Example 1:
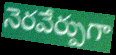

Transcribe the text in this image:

నెరవేర్పుగా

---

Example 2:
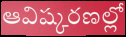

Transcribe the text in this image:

ఆవిష్కరణల్లో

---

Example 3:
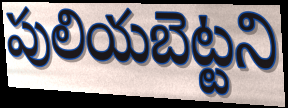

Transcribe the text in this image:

పులియబెట్టని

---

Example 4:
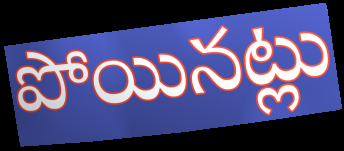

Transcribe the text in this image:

పోయినట్లు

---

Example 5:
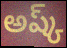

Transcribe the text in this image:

అష్క్